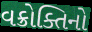
વક્રોક્તિનો